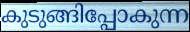
കുടുങ്ങിപ്പോകുന്ന